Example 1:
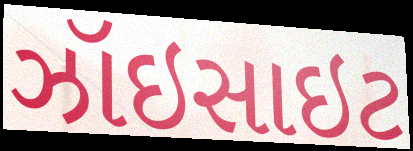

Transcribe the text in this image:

ઝૉઇસાઇટ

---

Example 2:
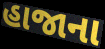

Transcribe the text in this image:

હાજાના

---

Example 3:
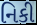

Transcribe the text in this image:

નિકી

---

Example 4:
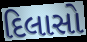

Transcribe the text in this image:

દિલાસો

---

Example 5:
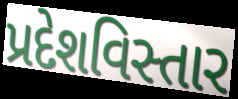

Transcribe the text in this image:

પ્રદેશવિસ્તાર